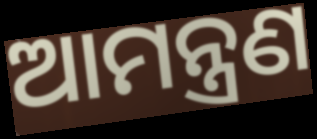
ଆମନ୍ତ୍ରଣ